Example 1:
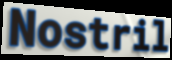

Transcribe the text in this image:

Nostril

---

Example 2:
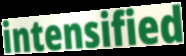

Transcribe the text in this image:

intensified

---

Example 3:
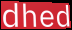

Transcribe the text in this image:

dhed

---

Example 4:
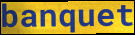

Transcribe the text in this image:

banquet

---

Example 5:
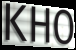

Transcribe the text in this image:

KHO